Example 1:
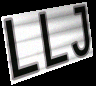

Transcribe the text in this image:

LLJ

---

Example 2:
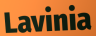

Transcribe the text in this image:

Lavinia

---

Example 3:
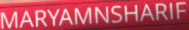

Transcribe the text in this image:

MARYAMNSHARIF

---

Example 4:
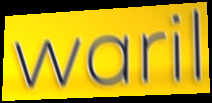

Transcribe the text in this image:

waril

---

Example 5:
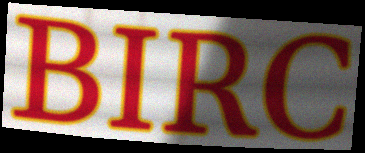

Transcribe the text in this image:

BIRC